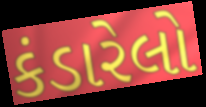
કંડારેલો